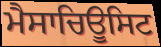
ਮੈਸਾਚਿਊਸਿਟ